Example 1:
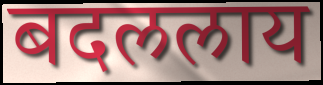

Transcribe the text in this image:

बदललाय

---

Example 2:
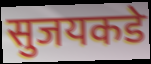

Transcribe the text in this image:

सुजयकडे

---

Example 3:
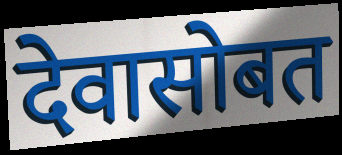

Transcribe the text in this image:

देवासोबत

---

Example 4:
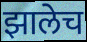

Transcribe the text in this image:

झालेच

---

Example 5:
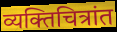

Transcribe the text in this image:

व्यक्तिचित्रांत